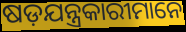
ଷଡ଼ଯନ୍ତ୍ରକାରୀମାନେ